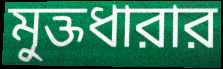
মুক্তধারার